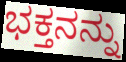
ಭಕ್ತನನ್ನು